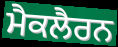
ਮੈਕਲੈਰਨ